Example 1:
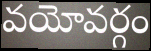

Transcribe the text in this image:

వయోవర్గం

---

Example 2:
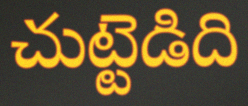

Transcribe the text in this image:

చుట్టెడిది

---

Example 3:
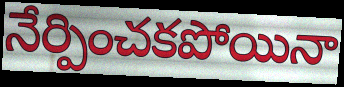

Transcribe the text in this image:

నేర్పించకపోయినా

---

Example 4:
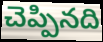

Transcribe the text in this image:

చెప్పినది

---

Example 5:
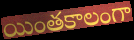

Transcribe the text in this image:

యింతకాలంగా